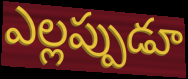
ఎల్లప్పుడూ